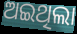
ଅଇଥିଲା